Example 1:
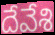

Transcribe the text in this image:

దేవేశి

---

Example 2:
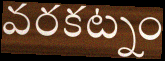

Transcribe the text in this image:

వరకట్నం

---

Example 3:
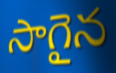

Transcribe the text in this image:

సాగైన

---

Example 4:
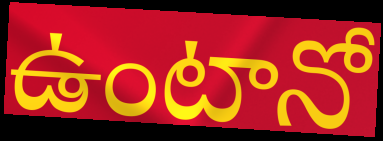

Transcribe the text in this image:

ఉంటానో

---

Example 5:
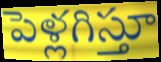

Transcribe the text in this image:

పెళ్లగిస్తూ